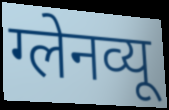
ग्लेनव्यू